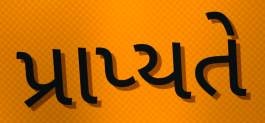
પ્રાપ્યતે